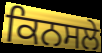
ਕਿਨਸਲੇ